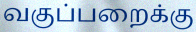
வகுப்பறைக்கு